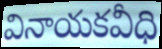
వినాయకవీధి